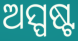
ଅସ୍ପଷ୍ଟ